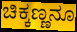
ಚಿಕ್ಕಣ್ಣನೂ